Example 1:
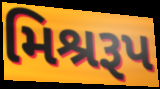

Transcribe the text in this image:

મિશ્રરૂપ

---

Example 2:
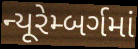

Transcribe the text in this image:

ન્યૂરેમ્બર્ગમાં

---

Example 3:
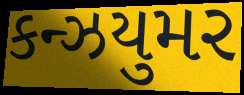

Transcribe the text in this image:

કન્ઝયુમર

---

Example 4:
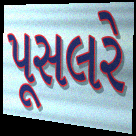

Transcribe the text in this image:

પૂસલરે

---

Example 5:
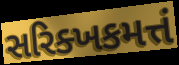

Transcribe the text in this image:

સરિક્ખકમત્તં